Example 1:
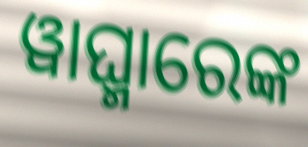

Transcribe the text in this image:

ୱାଘ୍ମାରେଙ୍କ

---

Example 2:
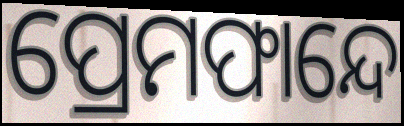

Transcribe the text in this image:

ପ୍ରେମଫାନ୍ଦେ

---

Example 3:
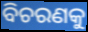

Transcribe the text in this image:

ବିଚରଣକୁ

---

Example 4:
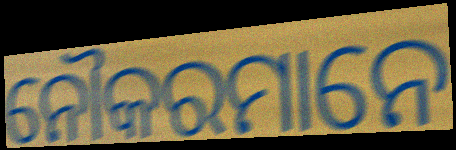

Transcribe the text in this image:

ନୌକରମାନେ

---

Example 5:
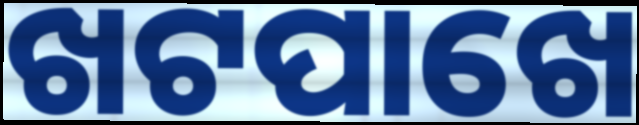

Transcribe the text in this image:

ଖଟପାଖେ